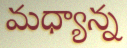
మధ్యాన్న